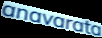
anavarata